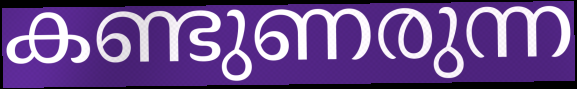
കണ്ടുണരുന്ന